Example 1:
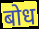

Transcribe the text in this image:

बोध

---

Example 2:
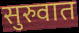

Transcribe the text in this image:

सुरुवात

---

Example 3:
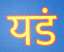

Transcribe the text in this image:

यडं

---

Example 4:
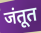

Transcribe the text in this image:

जंतूत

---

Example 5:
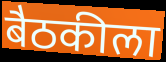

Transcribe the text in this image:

बैठकीला